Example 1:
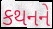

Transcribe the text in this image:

કથનને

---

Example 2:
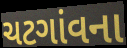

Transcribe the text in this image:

ચટગાંવના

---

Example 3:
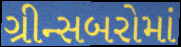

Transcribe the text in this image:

ગ્રીન્સબરોમાં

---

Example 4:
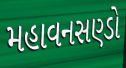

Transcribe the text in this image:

મહાવનસણ્ડો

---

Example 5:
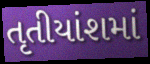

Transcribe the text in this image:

તૃતીયાંશમાં